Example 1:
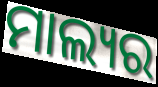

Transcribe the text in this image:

ମାଲ୍ୟର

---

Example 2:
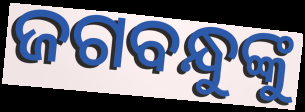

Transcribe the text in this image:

ଜଗବନ୍ଧୁଙ୍କୁ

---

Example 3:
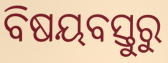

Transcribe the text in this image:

ବିଷୟବସ୍ତୁରୁ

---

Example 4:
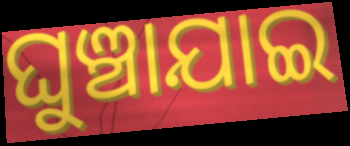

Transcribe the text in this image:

ଘୁଞ୍ଚାଯାଇ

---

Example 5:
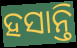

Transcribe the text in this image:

ହସାନ୍ତି